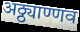
अठ्ठ्याण्णव